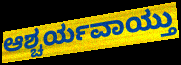
ಆಶ್ಚರ್ಯವಾಯ್ತು